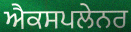
ਐਕਸਪਲੇਨਰ